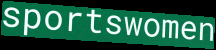
sportswomen